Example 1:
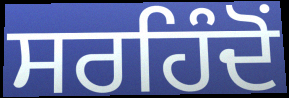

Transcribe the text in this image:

ਸਰਹਿੰਦੋਂ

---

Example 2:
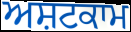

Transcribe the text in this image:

ਅਸ਼ਟਕਾਮ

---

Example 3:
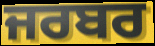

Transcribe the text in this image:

ਜਰਬਰ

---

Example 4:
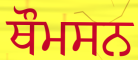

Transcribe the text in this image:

ਥੌਮਸਨ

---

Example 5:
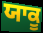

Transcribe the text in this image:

ਯਾਕੂ